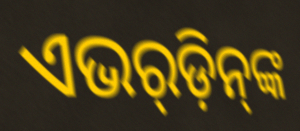
ଏଭର୍‍ଡ଼ିନ୍‌ଙ୍କ